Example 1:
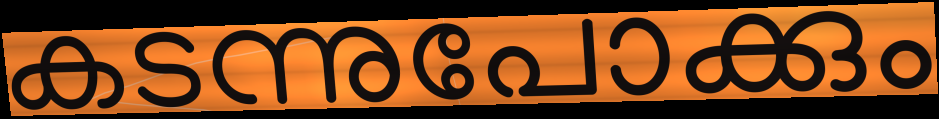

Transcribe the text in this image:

കടന്നുപോക്കും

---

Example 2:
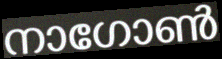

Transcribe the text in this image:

നാഗോൺ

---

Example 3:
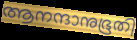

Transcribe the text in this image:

ആനന്ദാനുഭൂതി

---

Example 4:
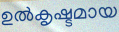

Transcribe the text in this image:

ഉൽകൃഷ്ടമായ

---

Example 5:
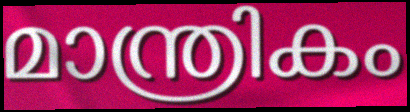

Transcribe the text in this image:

മാന്ത്രികം